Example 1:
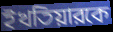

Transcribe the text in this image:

ইখতিয়ারকে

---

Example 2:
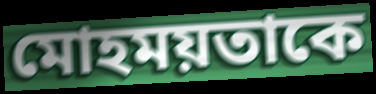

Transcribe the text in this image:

মোহময়তাকে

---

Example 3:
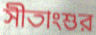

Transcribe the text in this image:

সীতাংশুর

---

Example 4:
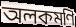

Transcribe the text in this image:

অলকমণি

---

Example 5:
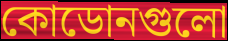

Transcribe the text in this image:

কোডোনগুলো